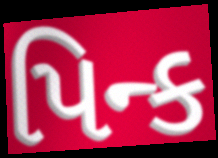
પિન્ક